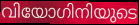
വിയോഗിനിയുടെ